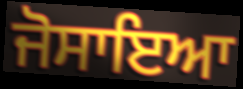
ਜੋਸਾਇਆ